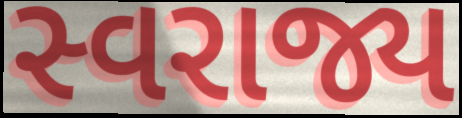
સ્વરાજ્ય